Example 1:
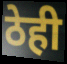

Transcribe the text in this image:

ठेही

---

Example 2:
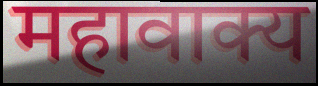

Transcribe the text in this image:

महावाक्य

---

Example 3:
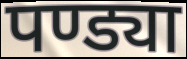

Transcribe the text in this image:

पण्ड्या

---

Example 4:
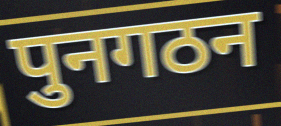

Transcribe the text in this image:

पुनगठन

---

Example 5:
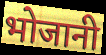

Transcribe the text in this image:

भोजानी